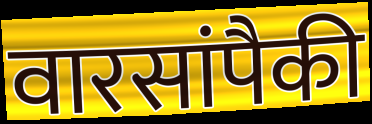
वारसांपैकी